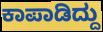
ಕಾಪಾಡಿದ್ದು